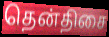
தென்திசை